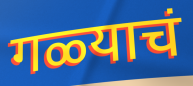
गळ्याचं